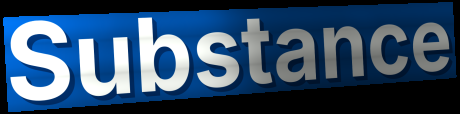
Substance